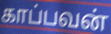
காப்பவன்